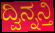
ದ್ವಿನ್ನನ್ತಿ